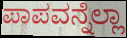
ಪಾಪವನ್ನೆಲ್ಲಾ